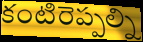
కంటిరెప్పల్ని